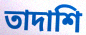
তাদাশি